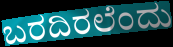
ಬರದಿರಲೆಂದು